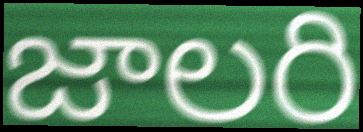
జాలరి